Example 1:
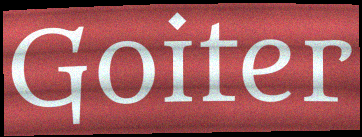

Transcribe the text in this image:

Goiter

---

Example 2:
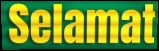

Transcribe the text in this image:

Selamat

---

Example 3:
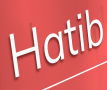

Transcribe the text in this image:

Hatib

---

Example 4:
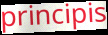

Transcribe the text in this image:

principis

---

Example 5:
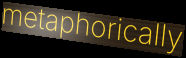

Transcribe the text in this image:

metaphorically